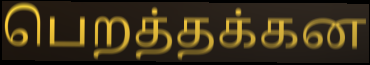
பெறத்தக்கன